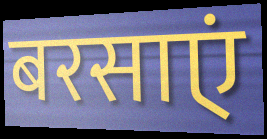
बरसाएं